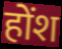
होंश